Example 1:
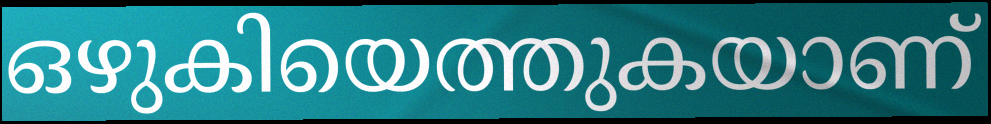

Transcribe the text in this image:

ഒഴുകിയെത്തുകയാണ്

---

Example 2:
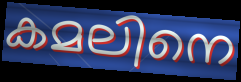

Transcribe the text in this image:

കമലിനെ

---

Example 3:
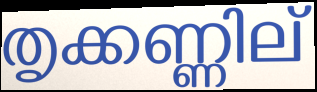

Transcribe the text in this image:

തൃക്കണ്ണില്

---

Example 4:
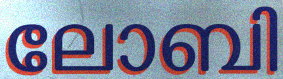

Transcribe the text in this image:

ലോബി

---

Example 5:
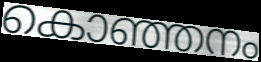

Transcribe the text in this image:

കൊഞ്ഞനം